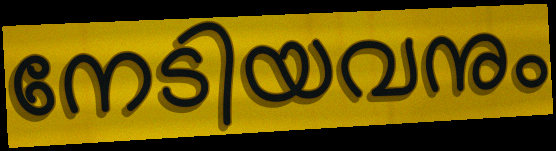
നേടിയവനും